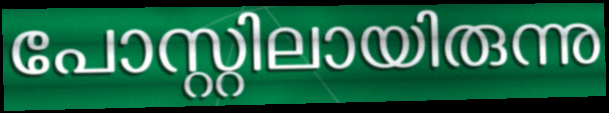
പോസ്റ്റിലായിരുന്നു